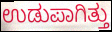
ಉಡುಪಾಗಿತ್ತು